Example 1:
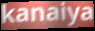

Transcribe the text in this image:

kanaiya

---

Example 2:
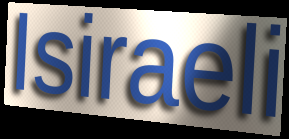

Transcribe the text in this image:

Isiraeli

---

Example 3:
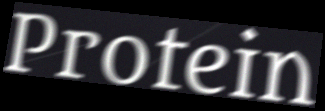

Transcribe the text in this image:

Protein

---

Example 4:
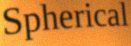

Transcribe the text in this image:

Spherical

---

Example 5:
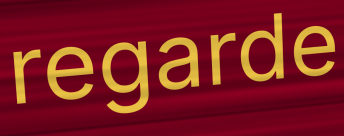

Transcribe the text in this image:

regarde